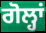
ਗੋਲ੍ਹਾਂ